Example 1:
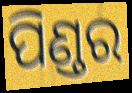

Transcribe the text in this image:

ପିଣ୍ଡର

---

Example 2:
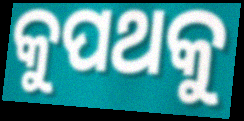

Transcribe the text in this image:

କୁପଥକୁ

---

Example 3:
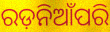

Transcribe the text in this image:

ରଡ଼ନିଆଁପରି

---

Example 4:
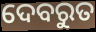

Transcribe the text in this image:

ଦେବରୁତ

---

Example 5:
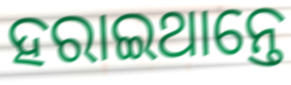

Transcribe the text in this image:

ହରାଇଥାନ୍ତେ